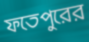
ফতেপুরের